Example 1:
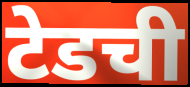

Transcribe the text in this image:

टेडची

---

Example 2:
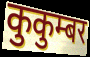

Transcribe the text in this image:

कुकुम्बर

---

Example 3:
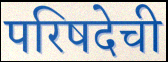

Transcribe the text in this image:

परिषदेची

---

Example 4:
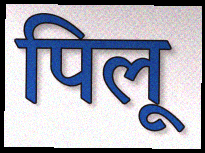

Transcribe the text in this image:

पिलू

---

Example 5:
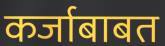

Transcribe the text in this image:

कर्जाबाबत